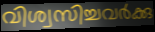
വിശ്വസിച്ചവർക്കു